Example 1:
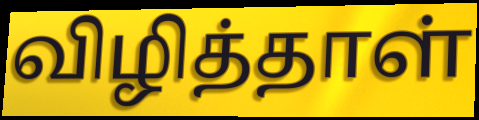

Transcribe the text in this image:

விழித்தாள்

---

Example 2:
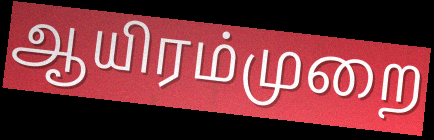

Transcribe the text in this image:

ஆயிரம்முறை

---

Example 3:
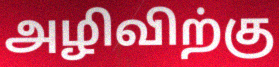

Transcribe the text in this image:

அழிவிற்கு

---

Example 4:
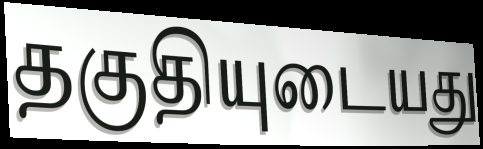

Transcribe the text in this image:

தகுதியுடையது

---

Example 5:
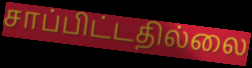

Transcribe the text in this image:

சாப்பிட்டதில்லை